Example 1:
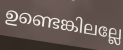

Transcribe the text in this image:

ഉണ്ടെങ്കിലല്ലേ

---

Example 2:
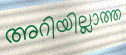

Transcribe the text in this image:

അറിയില്ലാത്ത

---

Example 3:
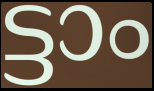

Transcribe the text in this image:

ട്ടാം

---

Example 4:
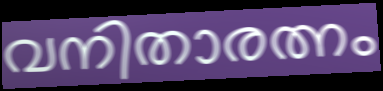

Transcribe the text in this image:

വനിതാരത്നം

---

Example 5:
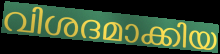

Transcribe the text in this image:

വിശദമാക്കിയ